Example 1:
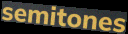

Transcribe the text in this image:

semitones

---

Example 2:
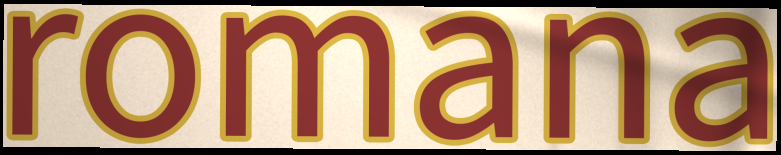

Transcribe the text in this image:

romana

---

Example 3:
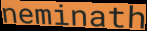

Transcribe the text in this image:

neminath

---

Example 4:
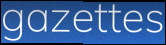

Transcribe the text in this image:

gazettes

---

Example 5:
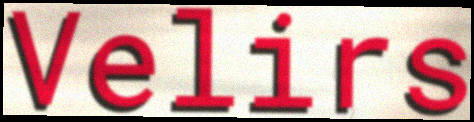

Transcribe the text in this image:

Velirs